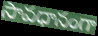
సావధానంగా